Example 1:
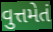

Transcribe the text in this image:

વુત્તમેતં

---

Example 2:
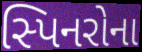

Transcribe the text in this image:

સ્પિનરોના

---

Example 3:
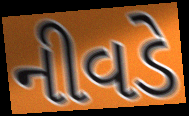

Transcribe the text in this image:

નીવડે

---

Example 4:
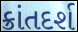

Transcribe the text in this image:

ક્રાંતદર્શ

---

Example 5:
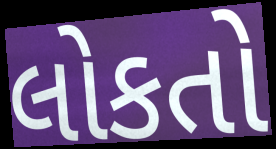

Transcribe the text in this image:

લોકતો